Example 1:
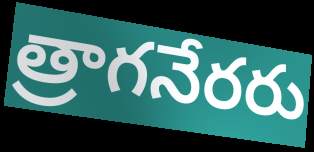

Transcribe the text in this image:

త్రాగనేరరు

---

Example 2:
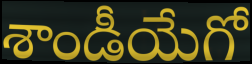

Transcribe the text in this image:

శాండీయేగో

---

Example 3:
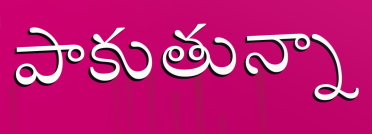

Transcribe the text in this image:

పాకుతున్నా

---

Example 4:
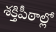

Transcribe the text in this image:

శక్తిపీఠాల్లో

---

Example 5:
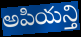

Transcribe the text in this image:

అపియన్తి